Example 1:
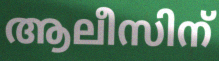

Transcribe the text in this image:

ആലീസിന്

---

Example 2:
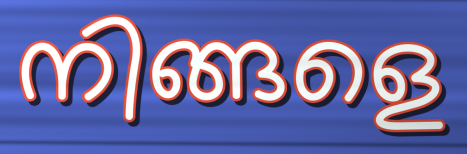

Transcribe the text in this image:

നിങ്ങളെ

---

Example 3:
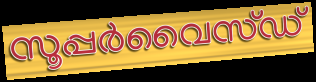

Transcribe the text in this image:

സൂപ്പർവൈസ്ഡ്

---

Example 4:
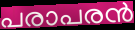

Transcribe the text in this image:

പരാപരൻ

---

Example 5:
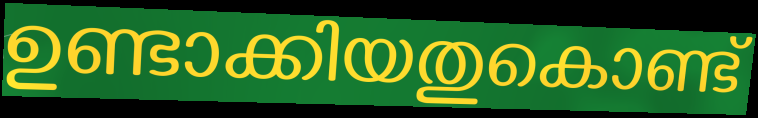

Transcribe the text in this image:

ഉണ്ടാക്കിയതുകൊണ്ട്